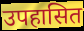
उपहासित